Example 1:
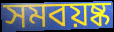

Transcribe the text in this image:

সমবয়ষ্ক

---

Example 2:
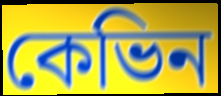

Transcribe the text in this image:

কেভিন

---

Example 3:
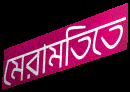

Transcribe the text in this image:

মেরামতিতে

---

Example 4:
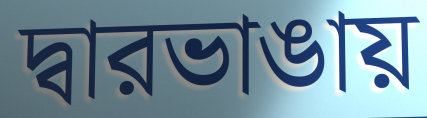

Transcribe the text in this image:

দ্বারভাঙায়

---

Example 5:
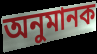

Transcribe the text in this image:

অনুমানক